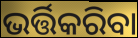
ଭର୍ତ୍ତିକରିବା